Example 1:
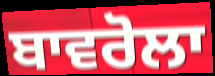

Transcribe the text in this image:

ਬਾਵਰੋਲਾ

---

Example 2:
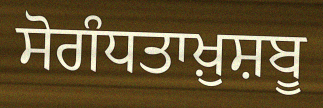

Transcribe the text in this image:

ਸੋਗੰਧਤਾਖ਼ੁਸ਼ਬੂ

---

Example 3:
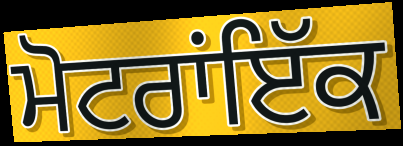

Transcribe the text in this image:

ਮੋਟਰਾਂਇੱਕ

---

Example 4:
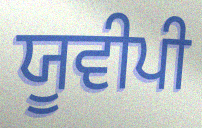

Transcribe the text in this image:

ਯੂਵੀਪੀ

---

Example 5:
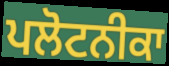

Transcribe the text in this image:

ਪਲੋਟਨੀਕਾ